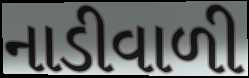
નાડીવાળી